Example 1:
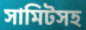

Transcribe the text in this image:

সামিটসহ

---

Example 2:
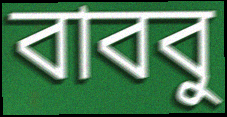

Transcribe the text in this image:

বাববু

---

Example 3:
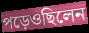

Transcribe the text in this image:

পড়েওছিলেন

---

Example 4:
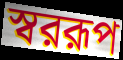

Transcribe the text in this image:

স্বররূপ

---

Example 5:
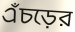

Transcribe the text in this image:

এঁচড়ের